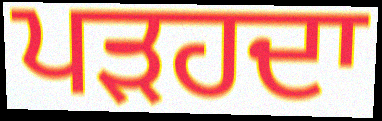
ਪੜਹਦਾ